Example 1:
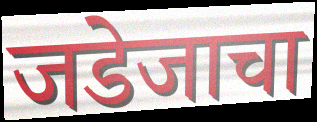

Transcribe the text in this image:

जडेजाचा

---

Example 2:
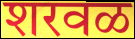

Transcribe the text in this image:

शरवळ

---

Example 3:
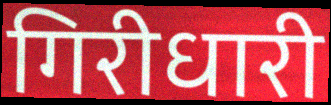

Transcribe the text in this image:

गिरीधारी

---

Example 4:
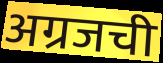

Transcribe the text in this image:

अग्रजची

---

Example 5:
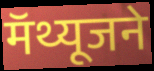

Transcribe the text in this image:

मॅथ्यूजने